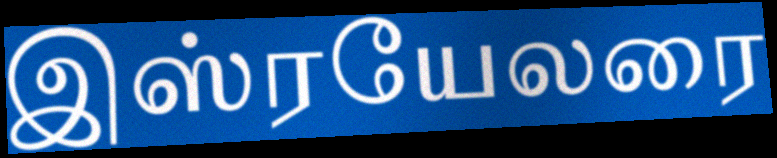
இஸ்ரயேலரை